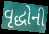
વૃદ્ધોની